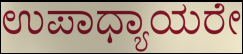
ಉಪಾಧ್ಯಾಯರೇ